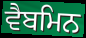
ਵੈਬਮਿਨ